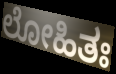
ಲೋಹಿತಃ